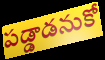
పడ్డాడనుకో